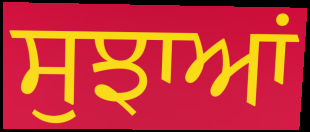
ਸੁਝਾਆਂ